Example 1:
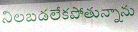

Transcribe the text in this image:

నిలబడలేకపోతున్నాను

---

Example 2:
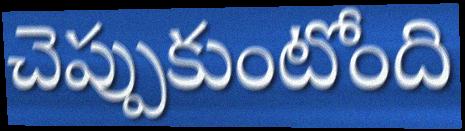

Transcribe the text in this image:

చెప్పుకుంటోంది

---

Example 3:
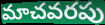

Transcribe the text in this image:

మాచవరపు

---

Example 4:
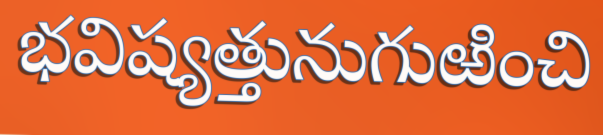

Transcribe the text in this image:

భవిష్యత్తునుగుఱించి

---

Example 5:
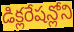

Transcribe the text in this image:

డిక్లరేషన్లోని